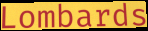
Lombards